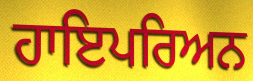
ਹਾਇਪਰਿਅਨ